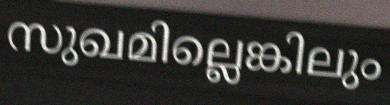
സുഖമില്ലെങ്കിലും